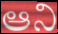
ఆని